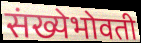
संख्येभोवती